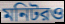
মনিটরও